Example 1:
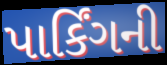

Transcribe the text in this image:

પાર્કિંગની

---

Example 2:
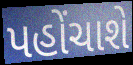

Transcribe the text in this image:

પહોંચાશે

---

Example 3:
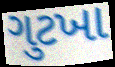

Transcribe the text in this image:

ગુટખા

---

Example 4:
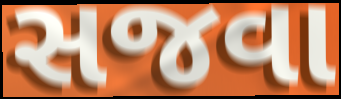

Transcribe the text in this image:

સજવા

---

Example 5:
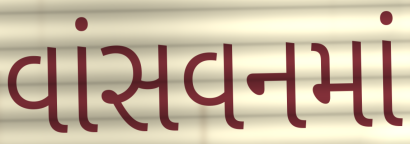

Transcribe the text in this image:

વાંસવનમાં